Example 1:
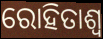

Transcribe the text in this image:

ରୋହିତାଶ୍ୱ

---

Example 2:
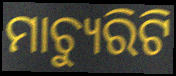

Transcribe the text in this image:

ମାଚ୍ୟୁରିଟି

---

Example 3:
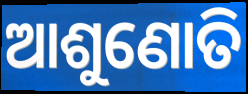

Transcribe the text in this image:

ଆଶୁଣୋତି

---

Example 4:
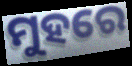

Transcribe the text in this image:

ମୁହରେ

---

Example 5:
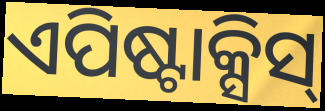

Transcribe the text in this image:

ଏପିଷ୍ଟାକ୍ସିସ୍